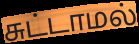
சுட்டாமல்